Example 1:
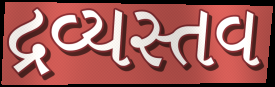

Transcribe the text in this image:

દ્રવ્યસ્તવ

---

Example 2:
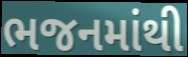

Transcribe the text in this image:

ભજનમાંથી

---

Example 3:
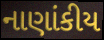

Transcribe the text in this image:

નાણાંકીય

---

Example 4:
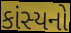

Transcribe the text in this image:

કાંસ્યનો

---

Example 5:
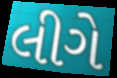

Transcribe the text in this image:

લીગે